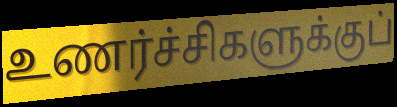
உணர்ச்சிகளுக்குப்